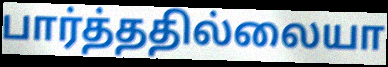
பார்த்ததில்லையா